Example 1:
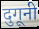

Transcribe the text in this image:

दुगूनी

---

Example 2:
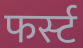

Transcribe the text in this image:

फर्स्‍ट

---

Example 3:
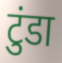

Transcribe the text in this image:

टुंडा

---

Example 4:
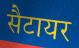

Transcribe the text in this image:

सैटायर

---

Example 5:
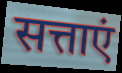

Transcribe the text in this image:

सत्ताएं